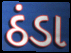
ઠંડા